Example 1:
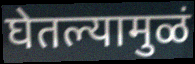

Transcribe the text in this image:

घेतल्यामुळं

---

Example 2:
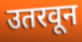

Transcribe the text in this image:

उतरवून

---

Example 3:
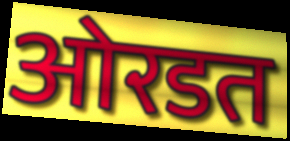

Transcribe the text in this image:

ओरडत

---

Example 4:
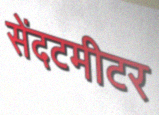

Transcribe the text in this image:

सेंदटमीटर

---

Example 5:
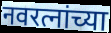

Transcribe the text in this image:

नवरत्नांच्या